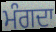
ਮੰਗਦਾ